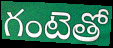
గంటెతో